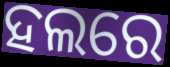
ହଲରେ